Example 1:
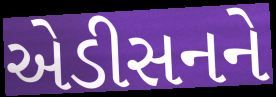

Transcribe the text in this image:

એડીસનને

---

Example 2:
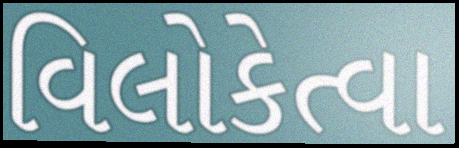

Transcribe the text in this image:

વિલોકેત્વા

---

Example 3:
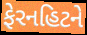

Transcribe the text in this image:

ફેરનહિટને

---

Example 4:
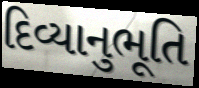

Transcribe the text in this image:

દિવ્યાનુભૂતિ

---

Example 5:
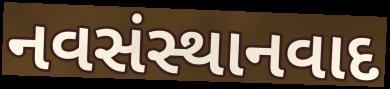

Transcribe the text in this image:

નવસંસ્થાનવાદ